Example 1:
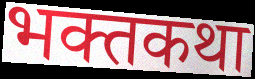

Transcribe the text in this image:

भक्तकथा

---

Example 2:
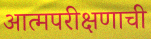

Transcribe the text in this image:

आत्मपरीक्षणाची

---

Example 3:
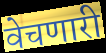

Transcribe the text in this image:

वेचणारी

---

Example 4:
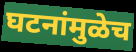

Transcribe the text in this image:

घटनांमुळेच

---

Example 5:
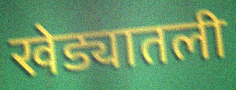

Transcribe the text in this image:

खेड्यातली